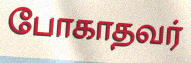
போகாதவர்